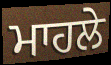
ਮਾਹਲੇ